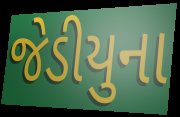
જેડીયુના